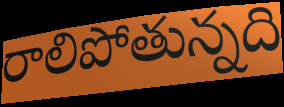
రాలిపోతున్నది